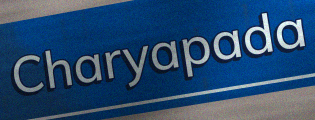
Charyapada